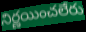
నిర్ణయించలేరు